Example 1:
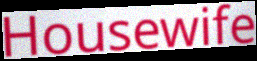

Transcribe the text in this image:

Housewife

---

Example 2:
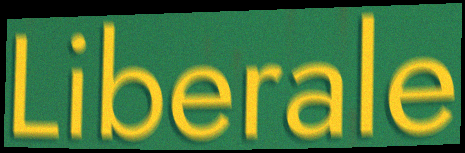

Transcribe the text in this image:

Liberale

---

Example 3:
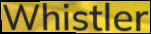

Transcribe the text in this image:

Whistler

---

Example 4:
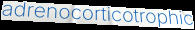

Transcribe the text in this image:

adrenocorticotrophic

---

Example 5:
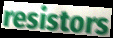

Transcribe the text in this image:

resistors